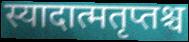
स्यादात्मतृप्तश्च